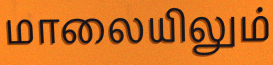
மாலையிலும்